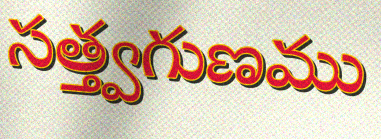
సత్త్వగుణము